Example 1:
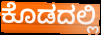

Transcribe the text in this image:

ಕೊಡದಲ್ಲಿ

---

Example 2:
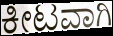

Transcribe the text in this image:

ಕೀಟವಾಗಿ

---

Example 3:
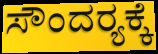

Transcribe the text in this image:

ಸೌಂದರ‍್ಯಕ್ಕೆ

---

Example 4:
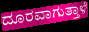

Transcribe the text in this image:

ದೂರವಾಗುತ್ತಾಳೆ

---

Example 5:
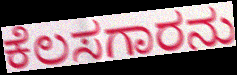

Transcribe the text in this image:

ಕೆಲಸಗಾರನು